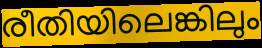
രീതിയിലെങ്കിലും